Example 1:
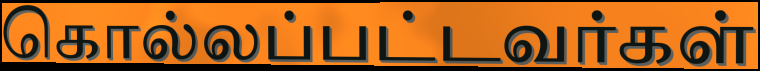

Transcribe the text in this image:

கொல்லப்பட்டவர்கள்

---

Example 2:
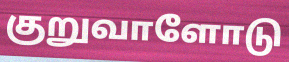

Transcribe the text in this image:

குறுவாளோடு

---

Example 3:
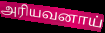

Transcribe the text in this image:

அரியவனாய்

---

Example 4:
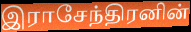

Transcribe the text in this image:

இராசேந்திரனின்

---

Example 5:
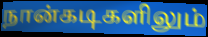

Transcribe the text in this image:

நான்கடிகளிலும்